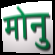
मोनु